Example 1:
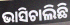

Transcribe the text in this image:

ଭାସିଚାଲିଛି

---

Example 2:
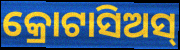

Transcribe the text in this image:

କ୍ରୋଟାସିଅସ୍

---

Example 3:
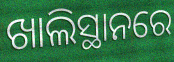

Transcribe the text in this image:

ଖାଲିସ୍ଥାନରେ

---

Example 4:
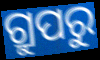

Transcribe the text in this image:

ଗ୍ରୁପରୁ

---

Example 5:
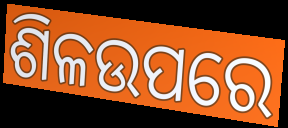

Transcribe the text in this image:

ଶିଳଉପରେ